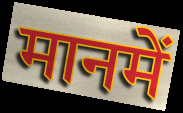
मानमें